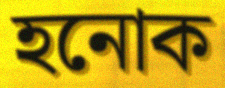
হনোক